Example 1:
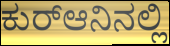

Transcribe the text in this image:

ಕುರ್‍ಆನಿನಲ್ಲಿ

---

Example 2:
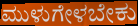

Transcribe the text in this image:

ಮುಳುಗೇಳಬೇಕು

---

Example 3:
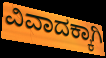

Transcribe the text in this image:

ವಿವಾದಕ್ಕಾಗಿ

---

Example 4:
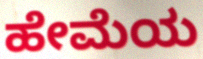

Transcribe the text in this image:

ಹೇಮೆಯ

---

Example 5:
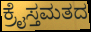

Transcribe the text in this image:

ಕ್ರೈಸ್ತಮತದ